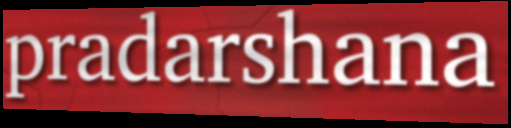
pradarshana